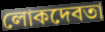
লোকদেবতা